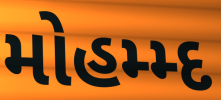
મોહમ્મ્દ